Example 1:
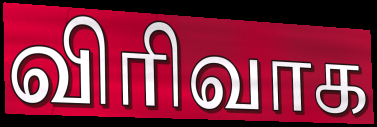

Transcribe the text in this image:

விரிவாக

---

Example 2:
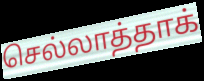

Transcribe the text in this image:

செல்லாத்தாக்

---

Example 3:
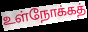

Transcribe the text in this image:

உள்நோக்கத்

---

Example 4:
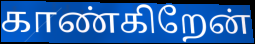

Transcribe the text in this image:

காண்கிறேன்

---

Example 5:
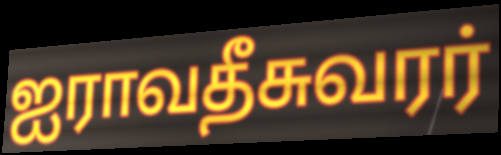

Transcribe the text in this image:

ஐராவதீசுவரர்